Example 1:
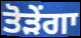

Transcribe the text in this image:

ਤੋੜੇਂਗਾ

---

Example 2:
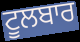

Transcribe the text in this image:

ਟੂਲਬਾਰ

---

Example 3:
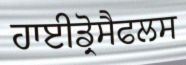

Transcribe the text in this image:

ਹਾਈਡ੍ਰੋਸੈਫਲਸ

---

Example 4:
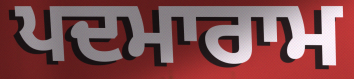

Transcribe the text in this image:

ਪਦਮਾਰਾਮ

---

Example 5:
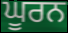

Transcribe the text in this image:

ਘੂਰਨ